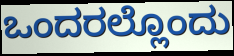
ಒಂದರಲ್ಲೊಂದು